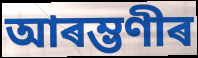
আৰম্ভণীৰ